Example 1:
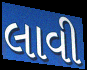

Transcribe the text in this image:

લાવી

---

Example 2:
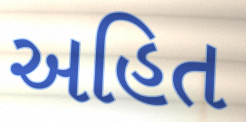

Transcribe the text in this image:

અહિત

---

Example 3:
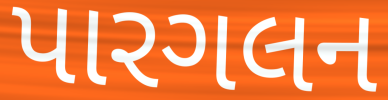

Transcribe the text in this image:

પારગલન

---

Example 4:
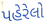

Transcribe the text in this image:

પહેરેલો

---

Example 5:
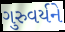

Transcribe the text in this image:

ગુરુવર્યને